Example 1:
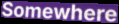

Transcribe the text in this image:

Somewhere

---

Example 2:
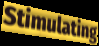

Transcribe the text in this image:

Stimulating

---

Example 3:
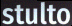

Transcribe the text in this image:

stulto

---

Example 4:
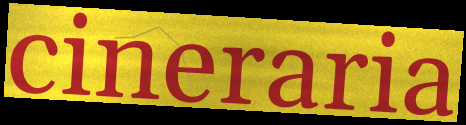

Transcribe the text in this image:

cineraria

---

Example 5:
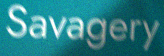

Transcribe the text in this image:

Savagery